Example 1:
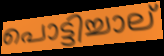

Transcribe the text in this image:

പൊട്ടിച്ചാല്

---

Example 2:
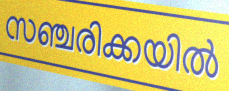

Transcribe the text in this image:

സഞ്ചരിക്കയിൽ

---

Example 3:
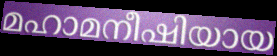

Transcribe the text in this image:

മഹാമനീഷിയായ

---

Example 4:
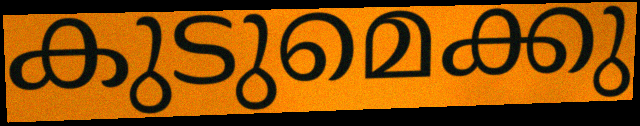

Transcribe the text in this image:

കുടുമെക്കു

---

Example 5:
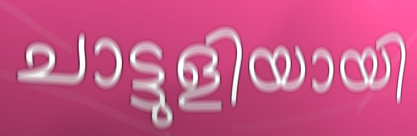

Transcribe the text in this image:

ചാട്ടുളിയായി